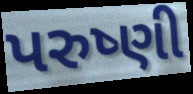
પરુષ્ણી